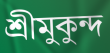
শ্রীমুকুন্দ